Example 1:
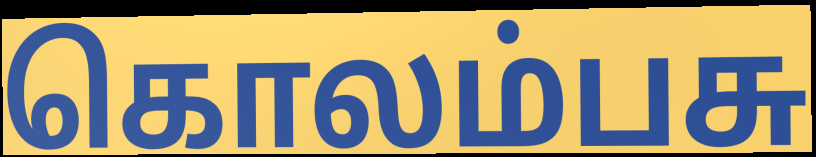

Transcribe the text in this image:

கொலம்பசு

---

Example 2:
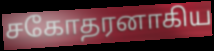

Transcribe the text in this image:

சகோதரனாகிய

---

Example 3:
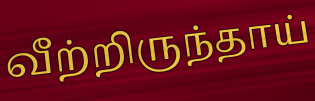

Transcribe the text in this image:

வீற்றிருந்தாய்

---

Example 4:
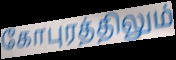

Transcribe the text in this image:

கோபுரத்திலும்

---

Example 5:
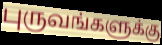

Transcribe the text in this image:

புருவங்களுக்கு